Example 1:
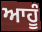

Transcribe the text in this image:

ਆਹੂੰ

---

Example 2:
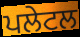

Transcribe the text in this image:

ਪਲੇਟਲ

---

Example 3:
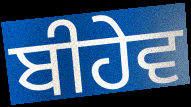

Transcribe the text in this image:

ਬੀਹੇਵ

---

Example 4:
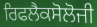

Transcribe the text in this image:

ਰਿਫਲੈਕਸੋਲੋਜੀ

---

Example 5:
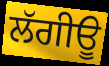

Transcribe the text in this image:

ਲੱਗੀਊ